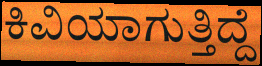
ಕಿವಿಯಾಗುತ್ತಿದ್ದೆ